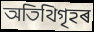
অতিথিগৃহৰ